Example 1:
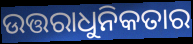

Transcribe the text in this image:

ଉତ୍ତରାଧୁନିକତାର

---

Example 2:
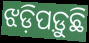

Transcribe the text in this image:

ଝଡ଼ିପଡ଼ୁଛି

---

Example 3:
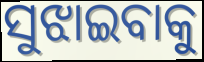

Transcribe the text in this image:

ସୁଝାଇବାକୁ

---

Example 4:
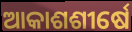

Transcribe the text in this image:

ଆକାଶଶୀର୍ଷେ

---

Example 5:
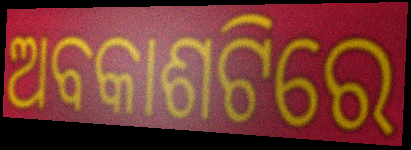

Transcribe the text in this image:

ଅବକାଶଟିରେ